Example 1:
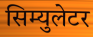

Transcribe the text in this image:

सिम्युलेटर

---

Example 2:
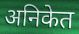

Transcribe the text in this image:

अनिकेत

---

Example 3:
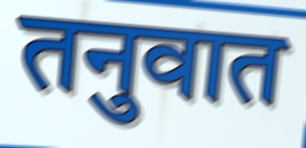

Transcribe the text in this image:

तनुवात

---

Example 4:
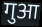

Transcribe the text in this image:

गुआ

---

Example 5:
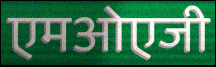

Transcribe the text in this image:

एमओएजी